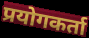
प्रयोगकर्ता